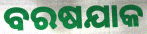
ବରଷଯାକ